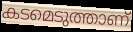
കടമെടുത്താണ്